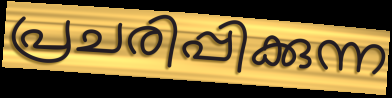
പ്രചരിപ്പിക്കുന്ന